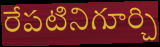
రేపటినిగూర్చి